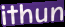
ithun